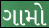
ગામો